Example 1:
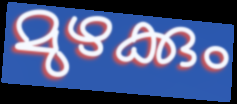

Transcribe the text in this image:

മുഴക്കും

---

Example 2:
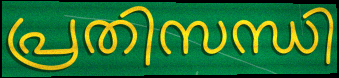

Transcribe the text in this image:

പ്രതിസന്ധി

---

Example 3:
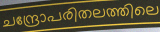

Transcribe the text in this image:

ചന്ദ്രോപരിതലത്തിലെ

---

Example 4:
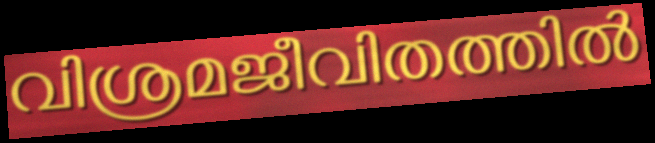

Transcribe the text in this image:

വിശ്രമജീവിതത്തിൽ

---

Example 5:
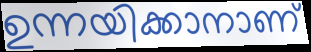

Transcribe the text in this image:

ഉന്നയിക്കാനാണ്